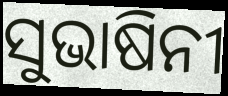
ସୁଭାଷିନୀ